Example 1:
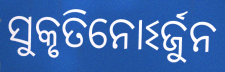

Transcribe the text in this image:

ସୁକୃତିନୋଽର୍ଜୁନ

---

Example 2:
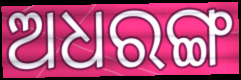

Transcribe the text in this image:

ଅଧରଙ୍ଗ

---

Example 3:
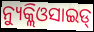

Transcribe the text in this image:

ନ୍ୟୁକ୍ଲିଓସାଇଡ୍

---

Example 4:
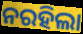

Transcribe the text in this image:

ନରହିଲା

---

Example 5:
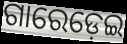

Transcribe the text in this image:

ଗାରେଡ଼େଇ